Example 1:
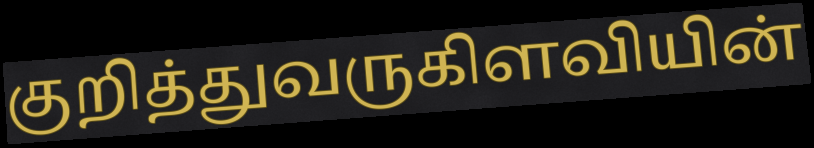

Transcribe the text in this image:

குறித்துவருகிளவியின்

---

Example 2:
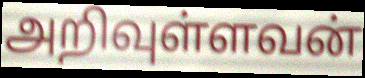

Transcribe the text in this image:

அறிவுள்ளவன்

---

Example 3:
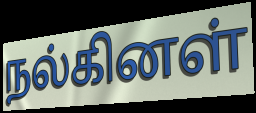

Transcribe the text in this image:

நல்கினள்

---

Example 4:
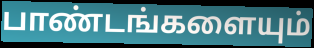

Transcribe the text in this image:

பாண்டங்களையும்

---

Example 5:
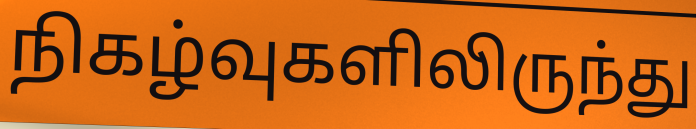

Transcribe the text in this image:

நிகழ்வுகளிலிருந்து